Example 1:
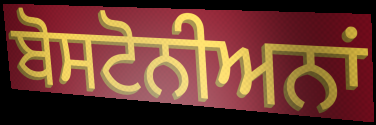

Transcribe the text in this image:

ਬੋਸਟੋਨੀਅਨਾਂ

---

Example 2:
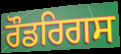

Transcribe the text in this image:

ਰੌਡਰਿਗਸ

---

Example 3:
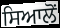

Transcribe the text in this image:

ਸਿਆਲੋਂ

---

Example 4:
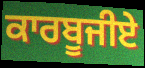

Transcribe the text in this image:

ਕਾਰਬੂਜੀਏ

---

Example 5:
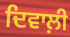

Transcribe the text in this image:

ਦਿਵਾਲ਼ੀ